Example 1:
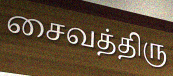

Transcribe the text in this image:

சைவத்திரு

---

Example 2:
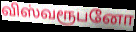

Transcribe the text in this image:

விஸ்வரூபனோ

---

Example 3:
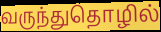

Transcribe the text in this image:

வருந்துதொழில்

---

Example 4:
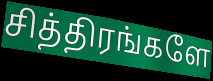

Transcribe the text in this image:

சித்திரங்களே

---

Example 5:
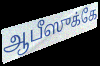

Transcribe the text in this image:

ஆபீஸுக்கே